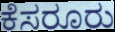
ಕೆಸರೂರು